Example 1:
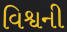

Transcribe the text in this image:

વિશ્વની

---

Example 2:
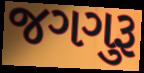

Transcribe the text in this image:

જગગુરૂ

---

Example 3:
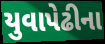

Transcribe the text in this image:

યુવાપેઢીના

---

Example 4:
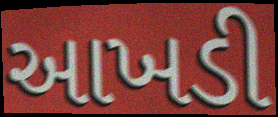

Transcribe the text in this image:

આખડી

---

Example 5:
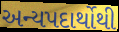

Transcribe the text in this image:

અન્યપદાર્થોથી